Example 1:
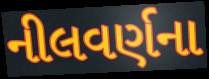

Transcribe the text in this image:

નીલવર્ણના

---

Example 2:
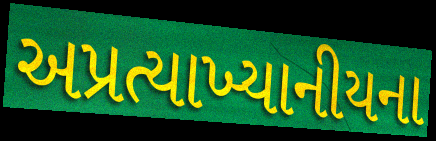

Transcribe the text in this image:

અપ્રત્યાખ્યાનીયના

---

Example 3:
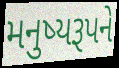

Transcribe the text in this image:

મનુષ્યરૂપને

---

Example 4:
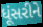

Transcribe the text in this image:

ધૂંસરીને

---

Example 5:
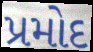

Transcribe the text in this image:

પ્રમોદ